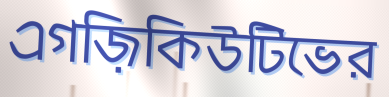
এগজ়িকিউটিভের